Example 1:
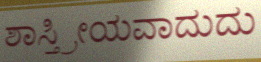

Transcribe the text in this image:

ಶಾಸ್ತ್ರೀಯವಾದುದು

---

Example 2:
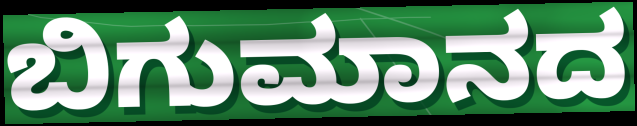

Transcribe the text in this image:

ಬಿಗುಮಾನದ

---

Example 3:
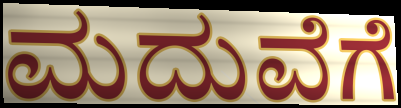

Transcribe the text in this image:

ಮದುವೆಗೆ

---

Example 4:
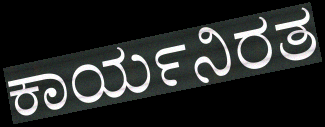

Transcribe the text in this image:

ಕಾರ್ಯನಿರತ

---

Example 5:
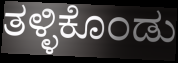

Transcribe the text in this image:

ತಳ್ಳಿಕೊಂಡು